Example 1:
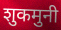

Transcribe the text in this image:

शुकमुनी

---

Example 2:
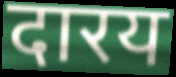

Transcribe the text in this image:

दारय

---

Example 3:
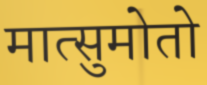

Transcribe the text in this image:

मात्सुमोतो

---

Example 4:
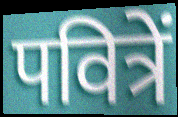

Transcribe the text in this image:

पवित्रें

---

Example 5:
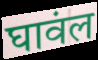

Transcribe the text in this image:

घावंल